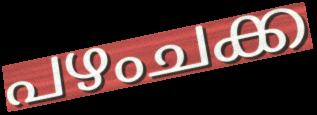
പഴംചക്ക